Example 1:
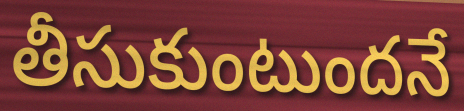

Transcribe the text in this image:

తీసుకుంటుందనే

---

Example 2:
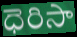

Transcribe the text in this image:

ధెరిసా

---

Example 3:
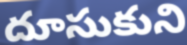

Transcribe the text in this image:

దూసుకుని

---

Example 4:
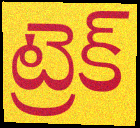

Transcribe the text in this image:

ట్రెక్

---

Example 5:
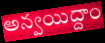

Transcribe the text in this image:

అన్వయిద్దాం